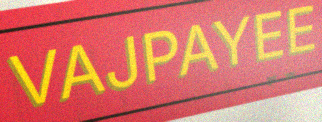
VAJPAYEE